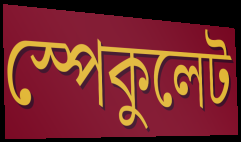
স্পেকুলেট